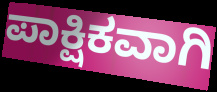
ಪಾಕ್ಷಿಕವಾಗಿ